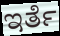
ಇರ್ತೆ